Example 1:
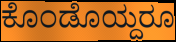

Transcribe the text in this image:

ಕೊಂಡೊಯ್ದರೂ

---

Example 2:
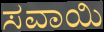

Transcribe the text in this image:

ಸವಾಯಿ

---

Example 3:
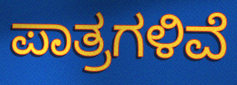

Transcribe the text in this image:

ಪಾತ್ರಗಳಿವೆ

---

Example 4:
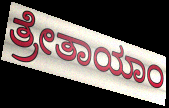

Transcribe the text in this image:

ತ್ರೇತಾಯಾಂ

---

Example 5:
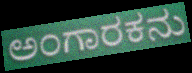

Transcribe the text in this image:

ಅಂಗಾರಕನು